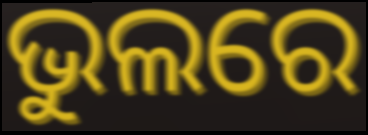
ଭୁଲରେ